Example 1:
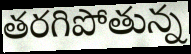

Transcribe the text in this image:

తరగిపోతున్న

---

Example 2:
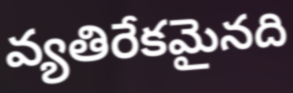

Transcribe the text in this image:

వ్యతిరేకమైనది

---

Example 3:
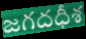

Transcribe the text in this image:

జగదధీశ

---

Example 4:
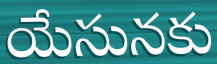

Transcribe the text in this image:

యేసునకు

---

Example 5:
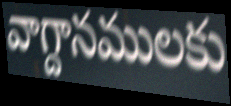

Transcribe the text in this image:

వాగ్దానములకు